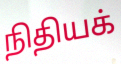
நிதியக்